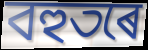
বহুতৰে